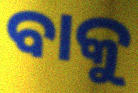
ବାକୁ